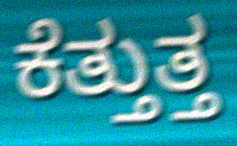
ಕೆತ್ತುತ್ತ